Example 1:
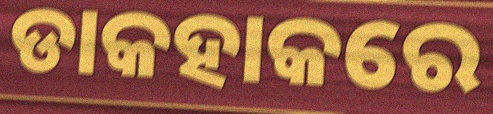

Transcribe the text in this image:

ଡାକହାକରେ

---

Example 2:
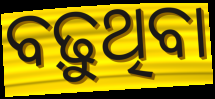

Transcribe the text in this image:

ବଢ଼ୁଥିବା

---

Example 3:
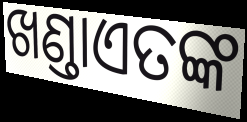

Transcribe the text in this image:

ଖଣ୍ଡାଏତଙ୍କ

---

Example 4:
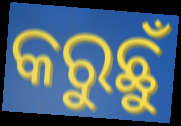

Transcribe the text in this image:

କରୁଛୁଁ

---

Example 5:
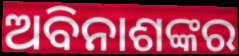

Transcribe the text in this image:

ଅବିନାଶଙ୍କର